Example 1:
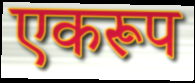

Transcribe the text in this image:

एकरूप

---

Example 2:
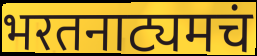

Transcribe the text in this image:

भरतनाट्यमचं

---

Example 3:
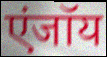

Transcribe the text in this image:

एंजॉय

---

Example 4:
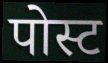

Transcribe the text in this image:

पोस्ट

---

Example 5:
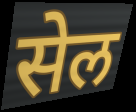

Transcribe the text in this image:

सेल